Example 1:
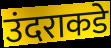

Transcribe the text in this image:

उंदराकडे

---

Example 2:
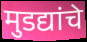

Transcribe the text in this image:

मुडद्यांचे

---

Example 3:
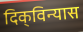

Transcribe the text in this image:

दिक्‌विन्यास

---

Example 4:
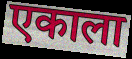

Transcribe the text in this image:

एकाला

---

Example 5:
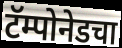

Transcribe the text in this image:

टॅम्पोनेडचा